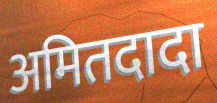
अमितदादा